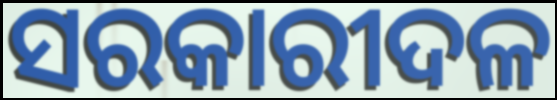
ସରକାରୀଦଳ